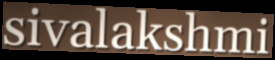
sivalakshmi